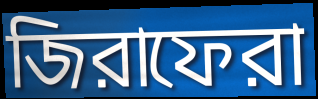
জিরাফেরা